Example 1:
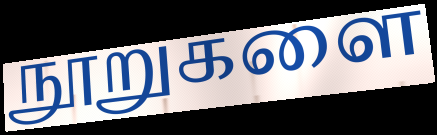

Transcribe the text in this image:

நூறுகளை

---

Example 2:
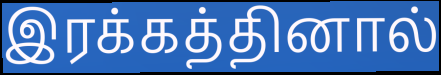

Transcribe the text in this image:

இரக்கத்தினால்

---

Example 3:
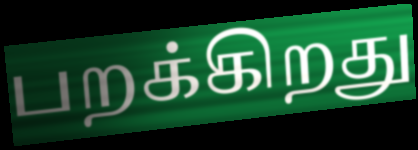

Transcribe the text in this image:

பறக்கிறது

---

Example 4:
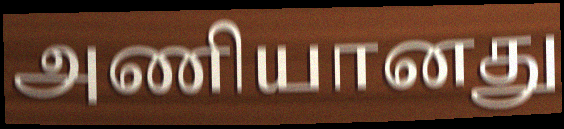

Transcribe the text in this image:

அணியானது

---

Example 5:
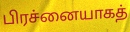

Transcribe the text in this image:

பிரச்னையாகத்